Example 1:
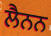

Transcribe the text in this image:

ਲੈਨਨ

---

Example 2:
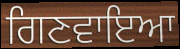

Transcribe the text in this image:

ਗਿਣਵਾਇਆ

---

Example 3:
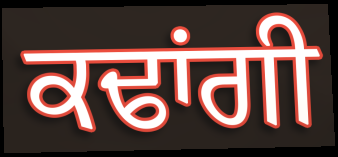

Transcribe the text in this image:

ਕਢਾਂਗੀ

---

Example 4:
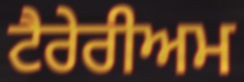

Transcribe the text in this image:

ਟੈਰੇਰੀਅਮ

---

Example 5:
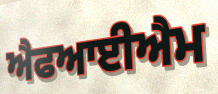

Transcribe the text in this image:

ਐਫਆਈਐਮ